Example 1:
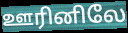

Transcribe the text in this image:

ஊரினிலே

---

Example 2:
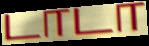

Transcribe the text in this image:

டாடா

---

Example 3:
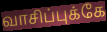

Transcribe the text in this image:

வாசிப்புக்கே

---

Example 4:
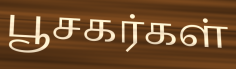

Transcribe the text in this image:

பூசகர்கள்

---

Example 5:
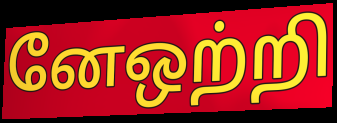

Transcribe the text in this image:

னேஒற்றி